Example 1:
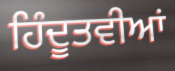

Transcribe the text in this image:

ਹਿੰਦੂਤਵੀਆਂ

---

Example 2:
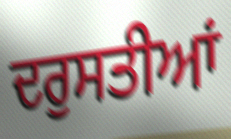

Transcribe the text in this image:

ਦਰੁਸਤੀਆਂ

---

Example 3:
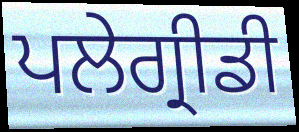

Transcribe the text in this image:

ਪਲੇਗ੍ਰੀਡੀ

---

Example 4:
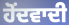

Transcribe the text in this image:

ਹੋਂਦਵਾਦੀ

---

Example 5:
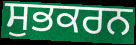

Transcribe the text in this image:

ਸੁਭਕਰਨ